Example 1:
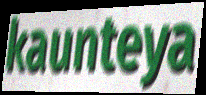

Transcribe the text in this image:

kaunteya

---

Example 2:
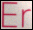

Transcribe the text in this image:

Er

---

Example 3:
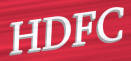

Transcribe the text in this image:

HDFC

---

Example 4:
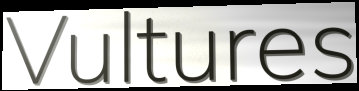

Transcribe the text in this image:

Vultures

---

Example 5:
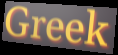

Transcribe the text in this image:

Greek